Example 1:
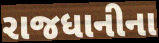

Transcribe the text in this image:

રાજધાનીના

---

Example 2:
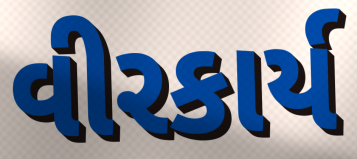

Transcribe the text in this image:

વીરકાર્ય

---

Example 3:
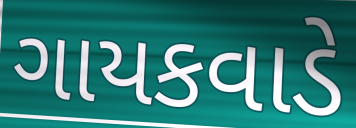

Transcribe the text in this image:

ગાયકવાડે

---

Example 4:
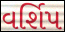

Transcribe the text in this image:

વર્શિપ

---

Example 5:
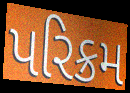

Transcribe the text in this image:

પરિક્રમ